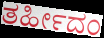
ತರ್ಹೀದಂ